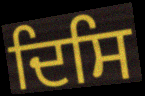
ਦਿਸਿ